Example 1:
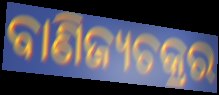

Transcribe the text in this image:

ବାଣିଜ୍ୟଚକ୍ରର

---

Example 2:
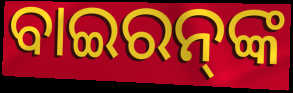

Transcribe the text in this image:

ବାଇରନ୍‌ଙ୍କ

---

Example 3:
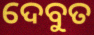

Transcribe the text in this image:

ଦେବୁତ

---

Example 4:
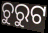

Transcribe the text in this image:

ଚୁରୁଟ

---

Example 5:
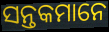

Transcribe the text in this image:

ସନ୍ତକମାନେ